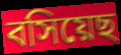
বসিয়েছ